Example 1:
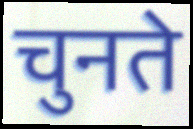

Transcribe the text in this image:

चुनते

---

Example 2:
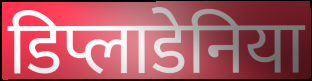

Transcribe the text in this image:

डिप्लाडेनिया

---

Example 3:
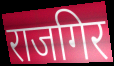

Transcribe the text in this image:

राजगिर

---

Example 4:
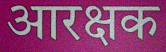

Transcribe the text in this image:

आरक्षक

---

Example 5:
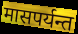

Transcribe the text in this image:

मासपर्यन्त